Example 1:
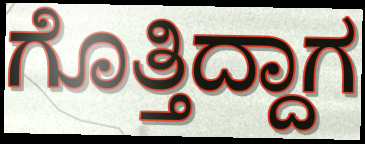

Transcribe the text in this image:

ಗೊತ್ತಿದ್ದಾಗ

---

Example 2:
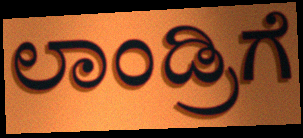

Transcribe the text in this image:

ಲಾಂಡ್ರಿಗೆ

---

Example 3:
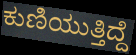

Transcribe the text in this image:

ಕುಣಿಯುತ್ತಿದ್ದೆ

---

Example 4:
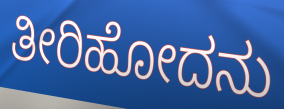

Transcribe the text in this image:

ತೀರಿಹೋದನು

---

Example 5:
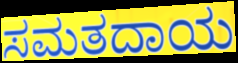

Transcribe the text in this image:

ಸಮತದಾಯ